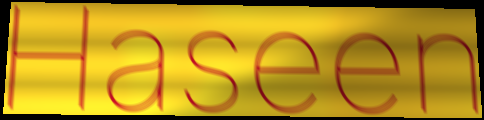
Haseen